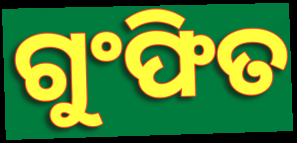
ଗୁଂଫିତ